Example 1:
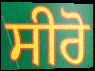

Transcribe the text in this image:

ਸੀਰੋ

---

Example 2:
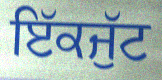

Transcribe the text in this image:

ਇੱਕਜੁੱਟ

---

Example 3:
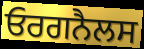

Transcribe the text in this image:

ਓਰਗਨੈਲਸ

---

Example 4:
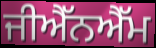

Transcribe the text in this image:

ਜੀਐੱਨਐੱਮ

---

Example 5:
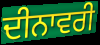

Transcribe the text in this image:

ਦੀਨਾਵਰੀ